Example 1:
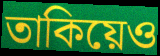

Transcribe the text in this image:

তাকিয়েও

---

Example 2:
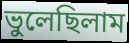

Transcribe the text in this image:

ভুলেছিলাম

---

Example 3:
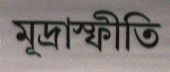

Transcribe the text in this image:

মূদ্রাস্ফীতি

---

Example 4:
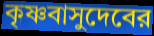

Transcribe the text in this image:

কৃষ্ণবাসুদেবের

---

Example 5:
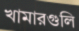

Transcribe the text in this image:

খামারগুলি